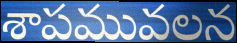
శాపమువలన